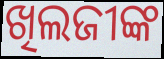
ଖିଲଜୀଙ୍କ